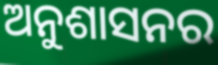
ଅନୁଶାସନର